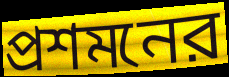
প্রশমনের